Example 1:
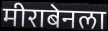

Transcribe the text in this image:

मीराबेनला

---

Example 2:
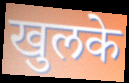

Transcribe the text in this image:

खुलके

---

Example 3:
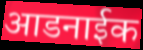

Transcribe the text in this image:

आडनाईक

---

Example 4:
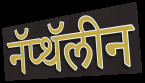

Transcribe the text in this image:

नॅप्थॅलीन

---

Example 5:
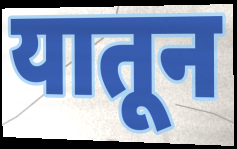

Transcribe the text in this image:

यातून